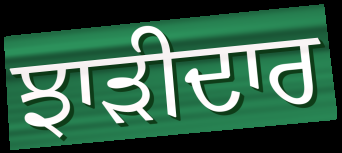
ਝਾੜੀਦਾਰ